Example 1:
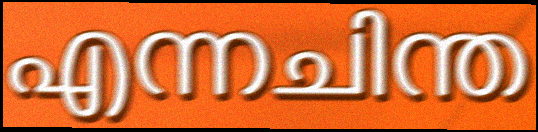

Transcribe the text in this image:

എന്നചിന്ത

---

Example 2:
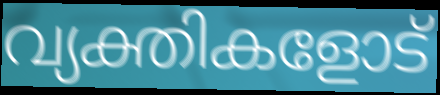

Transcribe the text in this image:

വ്യക്തികളോട്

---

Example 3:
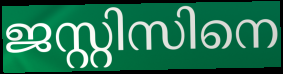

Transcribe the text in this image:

ജസ്റ്റിസിനെ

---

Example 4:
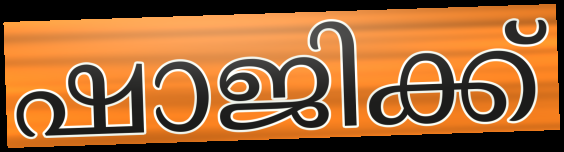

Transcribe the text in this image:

ഷാജിക്ക്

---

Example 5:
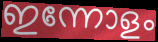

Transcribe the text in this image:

ഇന്നോളം